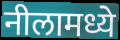
नीलामध्ये